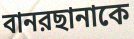
বানরছানাকে